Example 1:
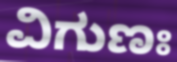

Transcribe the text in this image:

ವಿಗುಣಃ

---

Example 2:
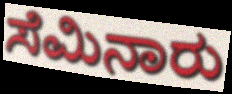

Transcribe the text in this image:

ಸೆಮಿನಾರು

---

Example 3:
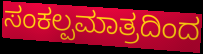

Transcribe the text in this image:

ಸಂಕಲ್ಪಮಾತ್ರದಿಂದ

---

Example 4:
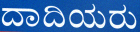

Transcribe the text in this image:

ದಾದಿಯರು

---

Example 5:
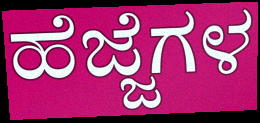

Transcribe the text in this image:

ಹೆಜ್ಜೆಗಳ